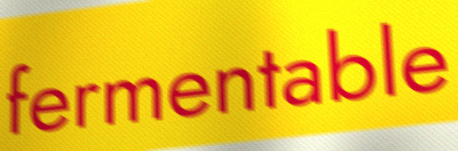
fermentable